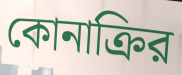
কোনাক্রির